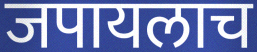
जपायलाच